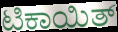
ಟಿಕಾಯಿತ್